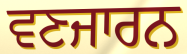
ਵਣਜਾਰਨ